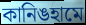
কানিঙহামে